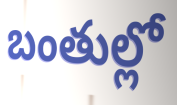
బంతుల్లో